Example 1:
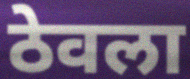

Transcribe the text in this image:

ठेवला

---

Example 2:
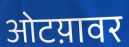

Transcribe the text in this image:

ओटय़ावर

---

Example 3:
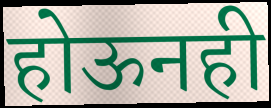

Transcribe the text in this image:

होऊनही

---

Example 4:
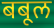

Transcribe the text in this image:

बबूल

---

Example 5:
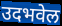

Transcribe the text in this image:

उदभवेल